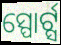
ସ୍ପୋର୍ଟ୍ସ